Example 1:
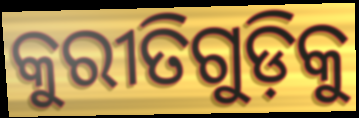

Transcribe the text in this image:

କୁରୀତିଗୁଡ଼ିକୁ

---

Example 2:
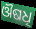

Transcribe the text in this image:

ଔଷଧି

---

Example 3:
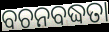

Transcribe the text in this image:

ବଚନବଦ୍ଧତା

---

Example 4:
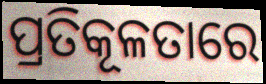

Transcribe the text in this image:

ପ୍ରତିକୂଳତାରେ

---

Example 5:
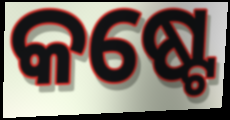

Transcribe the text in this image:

କଷ୍ଟେ